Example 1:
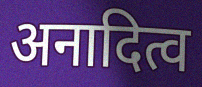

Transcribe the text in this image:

अनादित्व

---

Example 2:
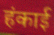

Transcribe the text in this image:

हंकाई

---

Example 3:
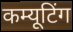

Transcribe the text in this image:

कम्यूटिंग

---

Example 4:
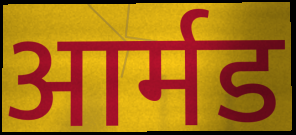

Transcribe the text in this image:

आर्मड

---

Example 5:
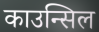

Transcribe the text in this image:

काउन्सिल